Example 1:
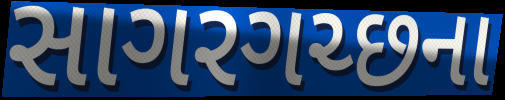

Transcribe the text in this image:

સાગરગચ્છના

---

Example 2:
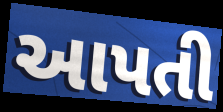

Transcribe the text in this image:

આપતી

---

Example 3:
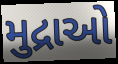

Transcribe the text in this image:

મુદ્રાઓ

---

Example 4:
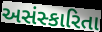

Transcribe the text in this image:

અસંસ્કારિતા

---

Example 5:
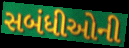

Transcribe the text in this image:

સબંધીઓની